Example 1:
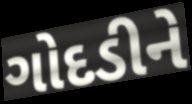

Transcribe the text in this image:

ગોદડીને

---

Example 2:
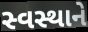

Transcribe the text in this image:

સ્વસ્થાને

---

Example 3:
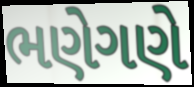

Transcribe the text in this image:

ભણેગણે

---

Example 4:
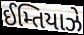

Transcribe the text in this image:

ઈમ્તિયાઝે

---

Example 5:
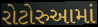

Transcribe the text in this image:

રોટોરુઆમાં